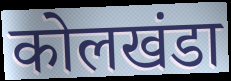
कोलखंडा